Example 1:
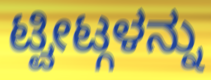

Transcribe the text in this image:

ಟ್ವೀಟ್ಗಳನ್ನು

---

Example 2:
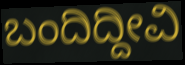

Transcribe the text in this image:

ಬಂದಿದ್ದೀವಿ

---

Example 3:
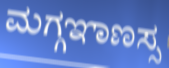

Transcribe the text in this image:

ಮಗ್ಗಞಾಣಸ್ಸ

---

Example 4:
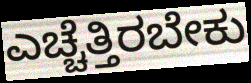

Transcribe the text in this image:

ಎಚ್ಚೆತ್ತಿರಬೇಕು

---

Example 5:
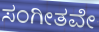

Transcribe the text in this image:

ಸಂಗೀತವೇ